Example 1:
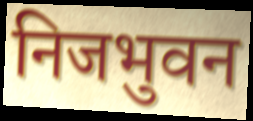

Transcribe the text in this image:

निजभुवन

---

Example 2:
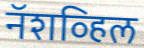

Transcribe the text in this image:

नॅशव्हिल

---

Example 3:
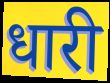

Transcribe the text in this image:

धारी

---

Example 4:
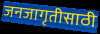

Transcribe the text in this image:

जनजागृतीसाठी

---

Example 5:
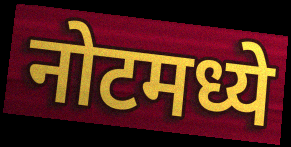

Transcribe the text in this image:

नोटमध्ये